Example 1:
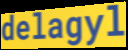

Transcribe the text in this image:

delagyl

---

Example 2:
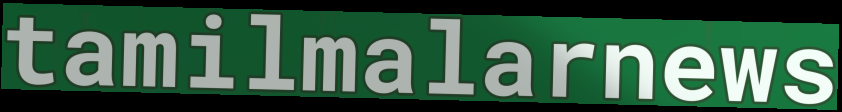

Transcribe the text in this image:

tamilmalarnews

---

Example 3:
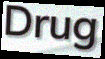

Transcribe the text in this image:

Drug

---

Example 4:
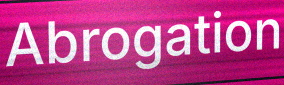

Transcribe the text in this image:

Abrogation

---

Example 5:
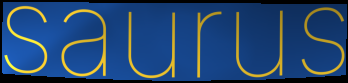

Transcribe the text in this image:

saurus